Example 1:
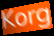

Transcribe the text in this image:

Korg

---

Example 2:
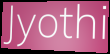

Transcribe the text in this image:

Jyothi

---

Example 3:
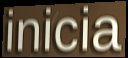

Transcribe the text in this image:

inicia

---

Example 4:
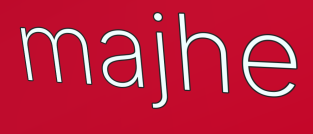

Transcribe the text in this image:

majhe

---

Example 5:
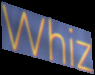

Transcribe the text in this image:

Whiz